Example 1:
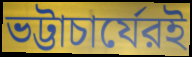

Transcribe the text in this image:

ভট্টাচার্যেরই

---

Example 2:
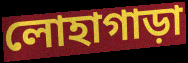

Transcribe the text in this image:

লোহাগাড়া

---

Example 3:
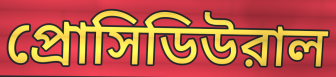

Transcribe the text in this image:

প্রোসিডিউরাল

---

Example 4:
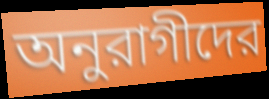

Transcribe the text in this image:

অনুরাগীদের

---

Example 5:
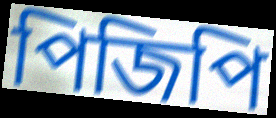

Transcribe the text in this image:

পিজিপি